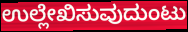
ಉಲ್ಲೇಖಿಸುವುದುಂಟು